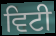
ਵਿਟੀ